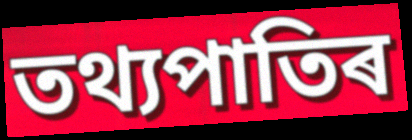
তথ্যপাতিৰ